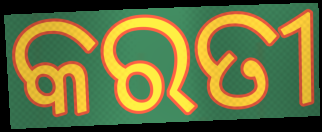
କରତୀ